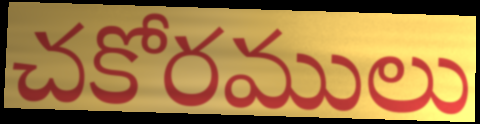
చకోరములు